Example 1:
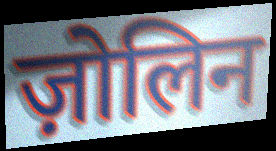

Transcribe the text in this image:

ज़ोलिन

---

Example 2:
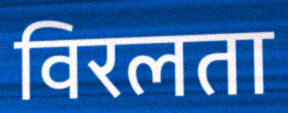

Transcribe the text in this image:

विरलता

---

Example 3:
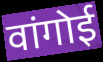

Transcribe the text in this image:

वांगोई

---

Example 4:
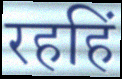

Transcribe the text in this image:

रहहिं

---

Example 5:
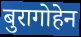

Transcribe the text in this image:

बुरागोहेन